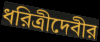
ধরিত্রীদেবীর